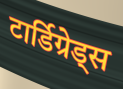
टार्डिग्रेड्स